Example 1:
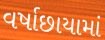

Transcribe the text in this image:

વર્ષાછાયામાં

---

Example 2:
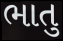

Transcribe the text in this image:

ભાતુ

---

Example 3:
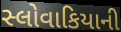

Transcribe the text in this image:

સ્લોવાકિયાની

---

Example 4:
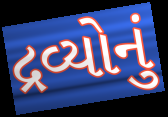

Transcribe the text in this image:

દ્રવ્યોનું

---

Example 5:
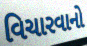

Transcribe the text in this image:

વિચારવાનો